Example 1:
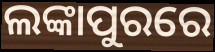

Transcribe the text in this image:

ଲଙ୍କାପୁରରେ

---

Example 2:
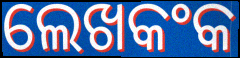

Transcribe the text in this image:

ଲେଖକଂକ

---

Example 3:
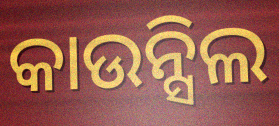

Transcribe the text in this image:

କାଉନ୍ସିଲ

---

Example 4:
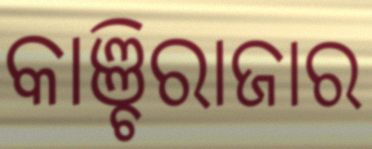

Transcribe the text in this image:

କାଞ୍ଚିରାଜାର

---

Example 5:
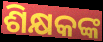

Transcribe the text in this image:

ଶିକ୍ଷକଙ୍କ